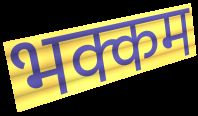
भक्‍कम